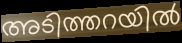
അടിത്തറയിൽ